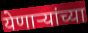
येणाऱ्यांच्या